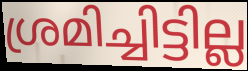
ശ്രമിച്ചിട്ടില്ല